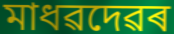
মাধৱদেৱৰ